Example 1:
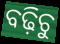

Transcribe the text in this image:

ବଢ଼ିଚୁ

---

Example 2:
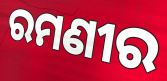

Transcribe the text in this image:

ରମଣୀର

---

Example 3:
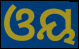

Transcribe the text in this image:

ଓୟ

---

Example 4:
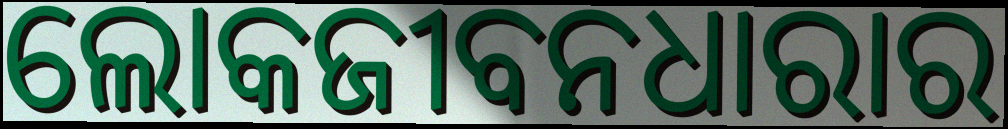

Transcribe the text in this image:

ଲୋକଜୀବନଧାରାର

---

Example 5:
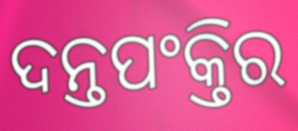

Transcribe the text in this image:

ଦନ୍ତପଂକ୍ତିର